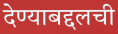
देण्याबद्दलची